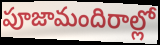
పూజామందిరాల్లో